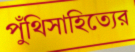
পুঁথিসাহিত্যের